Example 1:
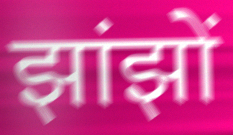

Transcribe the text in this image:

झांझों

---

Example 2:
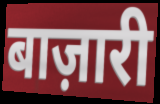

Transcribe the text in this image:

बाज़ारी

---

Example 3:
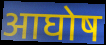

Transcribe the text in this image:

आघोष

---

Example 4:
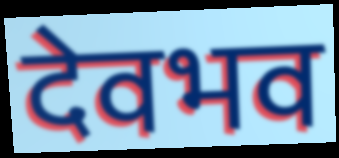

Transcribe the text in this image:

देवभव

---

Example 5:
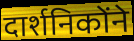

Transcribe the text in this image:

दार्शनिकोंने